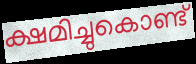
ക്ഷമിച്ചുകൊണ്ട്